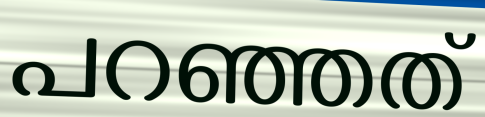
പറഞ്ഞത്